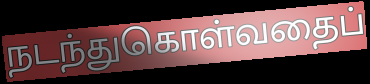
நடந்துகொள்வதைப்